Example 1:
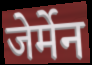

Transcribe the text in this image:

जेर्मेन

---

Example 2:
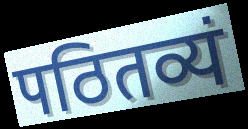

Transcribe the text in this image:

पठितव्यं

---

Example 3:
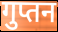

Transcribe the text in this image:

गुप्तन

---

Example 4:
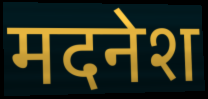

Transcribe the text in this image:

मदनेश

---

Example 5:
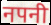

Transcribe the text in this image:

नपनी